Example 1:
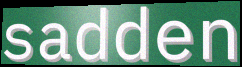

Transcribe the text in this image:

sadden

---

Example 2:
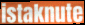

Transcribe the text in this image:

istaknute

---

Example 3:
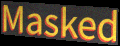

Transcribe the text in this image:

Masked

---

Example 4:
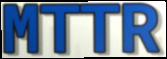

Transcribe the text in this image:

MTTR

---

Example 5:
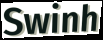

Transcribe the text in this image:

Swinh